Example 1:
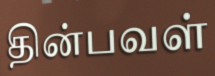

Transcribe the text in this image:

தின்பவள்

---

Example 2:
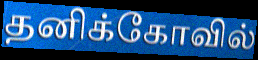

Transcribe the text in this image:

தனிக்கோவில்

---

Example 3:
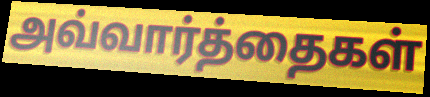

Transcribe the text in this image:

அவ்வார்த்தைகள்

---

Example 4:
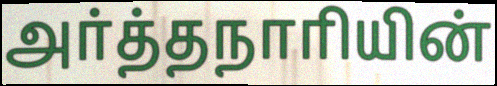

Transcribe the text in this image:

அர்த்தநாரியின்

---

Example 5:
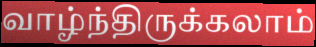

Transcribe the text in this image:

வாழ்ந்திருக்கலாம்